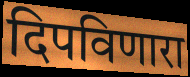
दिपविणारा